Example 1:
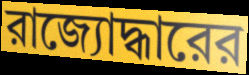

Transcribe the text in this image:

রাজ্যোদ্ধারের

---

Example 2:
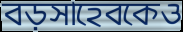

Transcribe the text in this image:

বড়সাহেবকেও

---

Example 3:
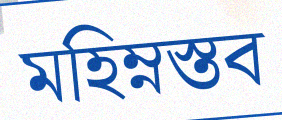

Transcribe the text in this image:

মহিম্নস্তব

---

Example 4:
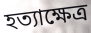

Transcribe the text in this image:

হত্যাক্ষেত্র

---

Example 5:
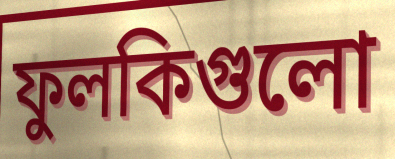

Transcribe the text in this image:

ফুলকিগুলো